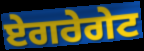
ਏਗਰੇਗੇਟ